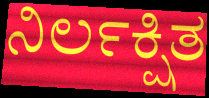
ನಿರ್ಲಕ್ಷಿತ